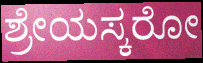
ಶ್ರೇಯಸ್ಕರೋ